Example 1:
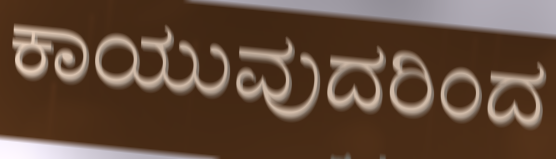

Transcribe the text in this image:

ಕಾಯುವುದರಿಂದ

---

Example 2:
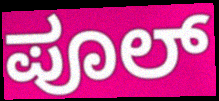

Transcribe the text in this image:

ಪೂಲ್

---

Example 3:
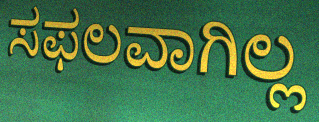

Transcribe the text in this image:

ಸಫಲವಾಗಿಲ್ಲ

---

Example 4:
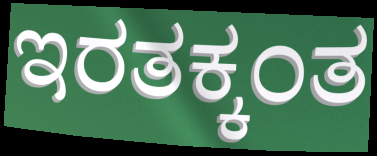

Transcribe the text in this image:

ಇರತಕ್ಕಂತ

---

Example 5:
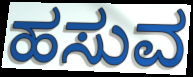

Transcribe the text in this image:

ಹಸುವ